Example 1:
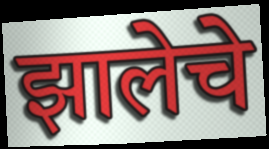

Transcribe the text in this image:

झालेचे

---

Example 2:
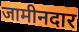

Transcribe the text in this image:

जामीनदार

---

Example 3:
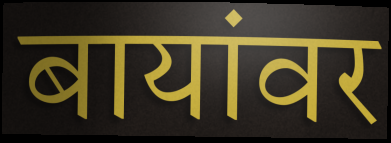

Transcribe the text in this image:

बायांवर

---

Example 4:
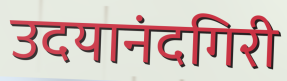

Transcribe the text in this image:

उदयानंदगिरी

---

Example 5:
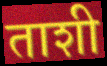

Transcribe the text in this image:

ताशी